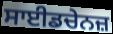
ਸਾਈਡਚੇਨਜ਼